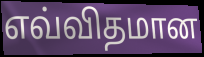
எவ்விதமான